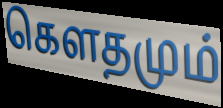
கெளதமும்